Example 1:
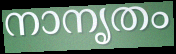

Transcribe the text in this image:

നാനൃതം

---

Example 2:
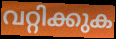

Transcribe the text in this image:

വറ്റിക്കുക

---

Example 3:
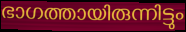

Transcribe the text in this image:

ഭാഗത്തായിരുന്നിട്ടും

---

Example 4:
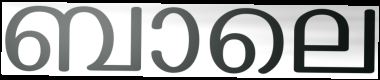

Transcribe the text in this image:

ബാലെ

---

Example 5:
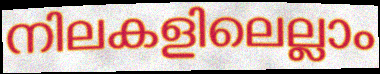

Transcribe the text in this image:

നിലകളിലെല്ലാം